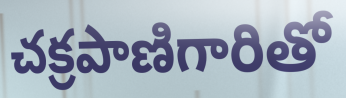
చక్రపాణిగారితో